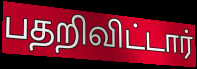
பதறிவிட்டார்